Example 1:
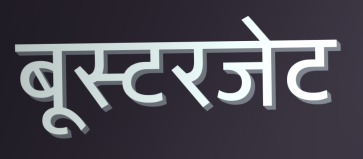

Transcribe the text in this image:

बूस्टरजेट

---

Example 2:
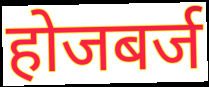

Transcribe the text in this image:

होजबर्ज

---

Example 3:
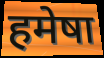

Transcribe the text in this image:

हमेषा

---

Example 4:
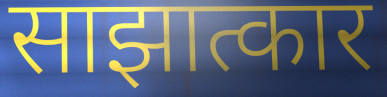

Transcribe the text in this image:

साझात्कार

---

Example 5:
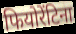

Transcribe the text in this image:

फियोरेंटिना